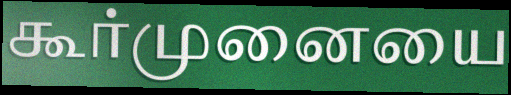
கூர்முனையை